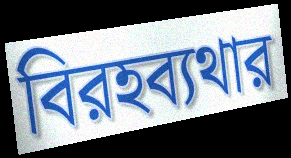
বিরহব্যথার